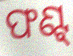
ଫଣ୍ଟ୍